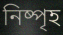
নিষ্পৃহ